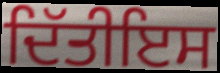
ਦਿੱਤੀਇਸ